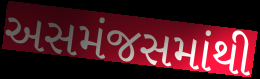
અસમંજસમાંથી